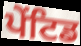
ਪੇਂਟਿਡ